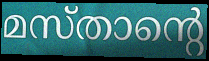
മസ്താന്റെ